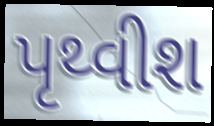
પૃથ્વીશ